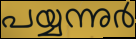
പയ്യന്നുർ